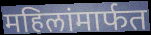
महिलांमार्फत